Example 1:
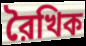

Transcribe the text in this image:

রৈখিক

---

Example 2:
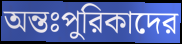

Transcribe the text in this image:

অন্তঃপুরিকাদের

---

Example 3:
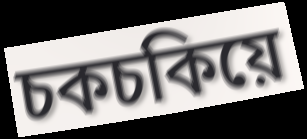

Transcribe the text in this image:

চকচকিয়ে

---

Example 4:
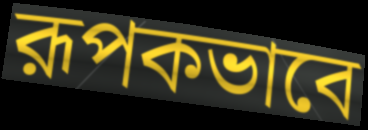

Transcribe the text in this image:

রূপকভাবে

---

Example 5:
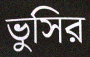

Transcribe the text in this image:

ভুসির